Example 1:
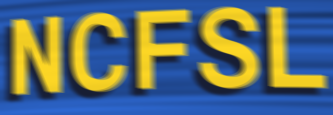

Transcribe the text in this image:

NCFSL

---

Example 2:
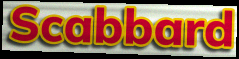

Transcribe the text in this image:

Scabbard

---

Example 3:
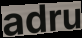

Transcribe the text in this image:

adru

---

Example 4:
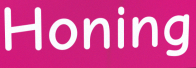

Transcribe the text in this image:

Honing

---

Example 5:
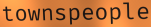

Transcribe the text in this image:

townspeople